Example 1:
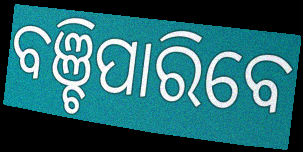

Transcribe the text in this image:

ବଞ୍ଚିପାରିବେ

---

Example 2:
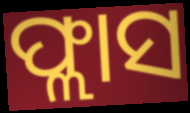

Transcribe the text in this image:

ଫ୍ଲାସ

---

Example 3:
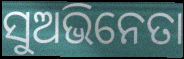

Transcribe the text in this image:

ସୁଅଭିନେତା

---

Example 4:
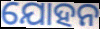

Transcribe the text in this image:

ଯୋହନ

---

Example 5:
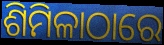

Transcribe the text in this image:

ଶିମିଳାଠାରେ